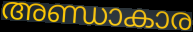
അണ്ഡാകാര